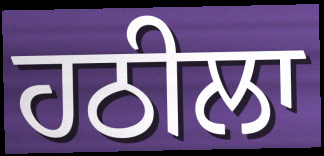
ਹਠੀਲਾ